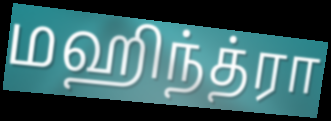
மஹிந்த்ரா